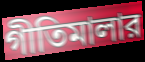
গীতিমালার